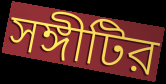
সঙ্গীটির